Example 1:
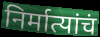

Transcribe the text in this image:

निर्मात्यांचं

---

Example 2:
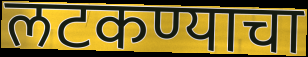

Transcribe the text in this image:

लटकण्याचा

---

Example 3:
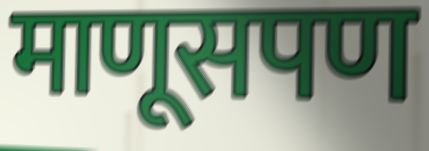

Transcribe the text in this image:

माणूसपण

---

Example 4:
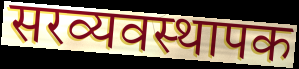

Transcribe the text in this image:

सरव्यवस्थापक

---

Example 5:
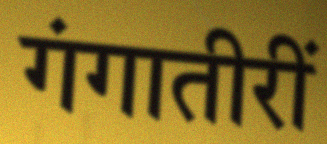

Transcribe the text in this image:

गंगातीरीं